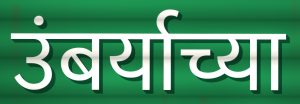
उंबर्याच्या